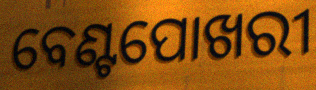
ବେଣ୍ଟପୋଖରୀ